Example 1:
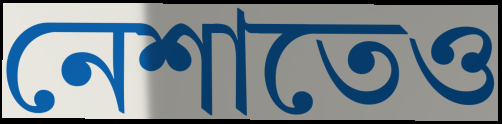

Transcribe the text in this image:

নেশাতেও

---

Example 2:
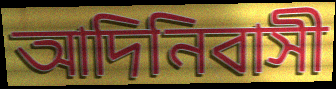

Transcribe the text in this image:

আদিনিবাসী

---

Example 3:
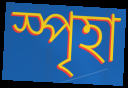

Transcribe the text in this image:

স্পৃহা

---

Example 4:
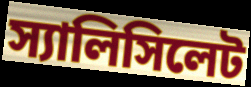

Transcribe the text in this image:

স্যালিসিলেট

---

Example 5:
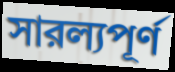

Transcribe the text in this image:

সারল্যপূর্ণ